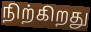
நிற்கிறது